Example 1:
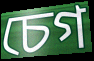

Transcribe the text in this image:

চেগ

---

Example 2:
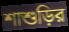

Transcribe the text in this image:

শাশুড়ির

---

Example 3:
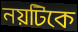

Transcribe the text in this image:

নয়টিকে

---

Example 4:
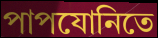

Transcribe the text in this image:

পাপযোনিতে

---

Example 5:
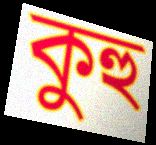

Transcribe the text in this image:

কুহু